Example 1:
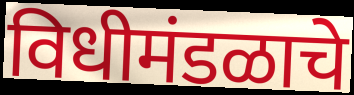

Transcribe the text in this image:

विधीमंडळाचे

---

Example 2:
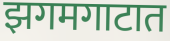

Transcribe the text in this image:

झगमगाटात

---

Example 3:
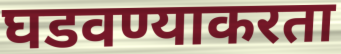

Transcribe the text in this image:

घडवण्याकरता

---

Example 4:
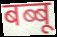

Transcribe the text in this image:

बब्बू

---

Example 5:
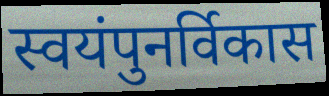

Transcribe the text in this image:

स्वयंपुनर्विकास